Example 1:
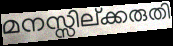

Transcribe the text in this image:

മനസ്സില്ക്കരുതി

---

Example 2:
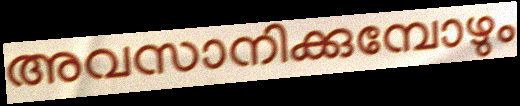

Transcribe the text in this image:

അവസാനിക്കുമ്പോഴും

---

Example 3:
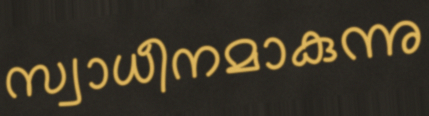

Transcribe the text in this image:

സ്വാധീനമാകുന്നു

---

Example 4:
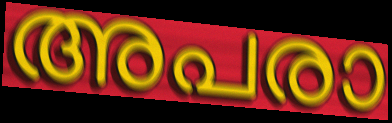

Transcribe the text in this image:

അപരാ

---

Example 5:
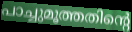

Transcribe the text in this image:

പാച്ചുമൂത്തതിന്റെ